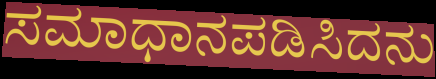
ಸಮಾಧಾನಪಡಿಸಿದನು